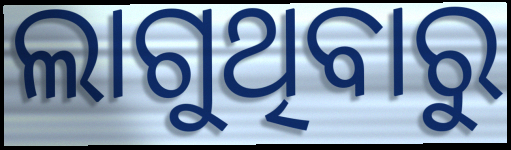
ଲାଗୁଥିବାରୁ